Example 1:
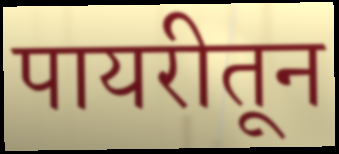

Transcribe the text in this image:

पायरीतून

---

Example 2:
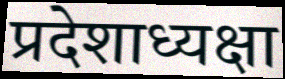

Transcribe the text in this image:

प्रदेशाध्यक्षा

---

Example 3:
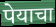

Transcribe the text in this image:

पेयाचा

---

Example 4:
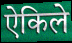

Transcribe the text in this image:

ऐकिले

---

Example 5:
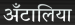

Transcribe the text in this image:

अँटालिया